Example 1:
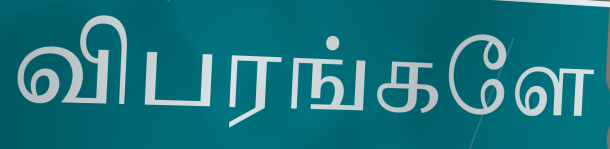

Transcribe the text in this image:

விபரங்களே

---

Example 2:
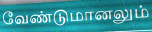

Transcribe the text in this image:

வேண்டுமானலும்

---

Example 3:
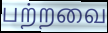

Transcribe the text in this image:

பற்றவை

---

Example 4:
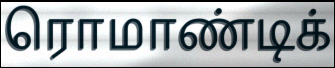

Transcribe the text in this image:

ரொமாண்டிக்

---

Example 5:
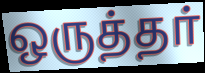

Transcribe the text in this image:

ஒருத்தர்